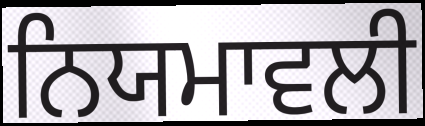
ਨਿਯਮਾਵਲੀ